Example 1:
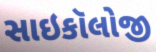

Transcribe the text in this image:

સાઇકૉલોજી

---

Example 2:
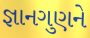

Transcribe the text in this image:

જ્ઞાનગુણને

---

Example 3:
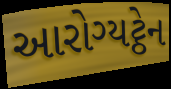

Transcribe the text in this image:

આરોગ્યટ્ઠેન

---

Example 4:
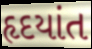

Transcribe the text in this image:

હૃદયાંત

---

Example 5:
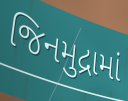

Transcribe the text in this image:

જિનમુદ્રામાં